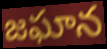
జఘాన